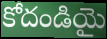
కోదండియై